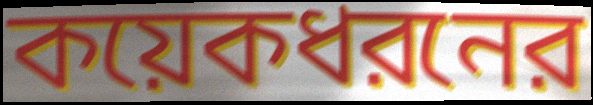
কয়েকধরনের